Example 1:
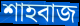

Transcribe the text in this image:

শাহবাজ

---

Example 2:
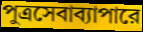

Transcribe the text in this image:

পুত্রসেবাব্যাপারে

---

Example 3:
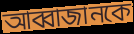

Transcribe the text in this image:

আব্বাজানকে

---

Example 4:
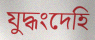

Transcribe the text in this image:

যুদ্ধংদেহি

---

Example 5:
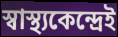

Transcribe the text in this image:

স্বাস্থ্যকেন্দ্রেই